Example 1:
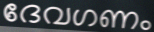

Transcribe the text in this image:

ദേവഗണം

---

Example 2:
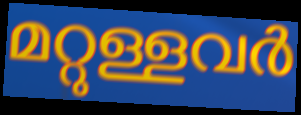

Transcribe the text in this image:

മറ്റുള്ളവർ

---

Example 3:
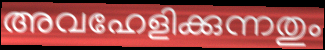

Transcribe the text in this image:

അവഹേളിക്കുന്നതും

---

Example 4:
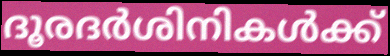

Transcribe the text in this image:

ദൂരദർശിനികൾക്ക്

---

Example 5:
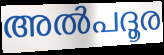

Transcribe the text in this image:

അൽപദൂര